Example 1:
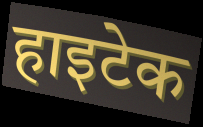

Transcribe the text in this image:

हाइटेक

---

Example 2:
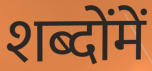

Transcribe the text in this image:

शब्दोंमें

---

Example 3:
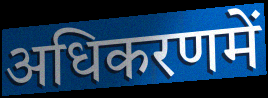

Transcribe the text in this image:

अधिकरणमें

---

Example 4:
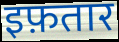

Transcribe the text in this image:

इफ़तार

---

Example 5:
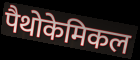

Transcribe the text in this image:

पैथोकेमिकल